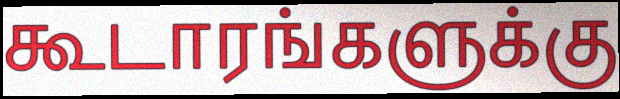
கூடாரங்களுக்கு